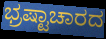
ಭ್ರಷ್ಟಾಚಾರದ